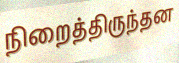
நிறைத்திருந்தன